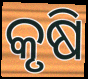
କୃଷି